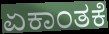
ಏಕಾಂತಕೆ